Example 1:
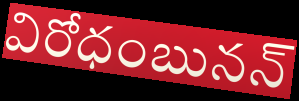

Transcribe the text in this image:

విరోధంబునన్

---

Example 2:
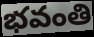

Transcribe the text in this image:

భవంతి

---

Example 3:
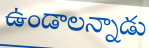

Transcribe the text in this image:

ఉండాలన్నాడు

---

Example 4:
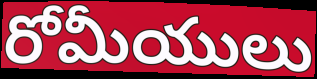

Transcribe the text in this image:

రోమీయులు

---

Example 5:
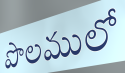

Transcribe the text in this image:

పొలములో